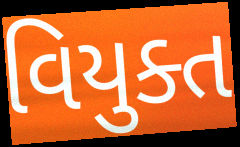
વિયુક્ત